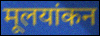
मूलयांकन